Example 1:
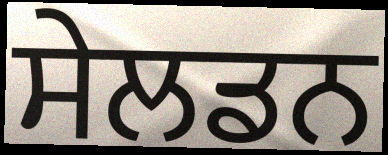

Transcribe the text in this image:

ਸੇਲਡਨ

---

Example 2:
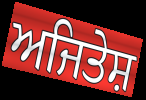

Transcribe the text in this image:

ਅਜਿਤੇਸ਼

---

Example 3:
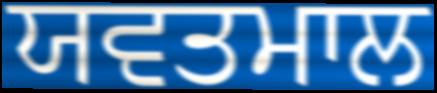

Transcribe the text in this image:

ਯਵਤਮਾਲ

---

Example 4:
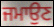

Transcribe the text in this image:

ਜਮਾਉਣ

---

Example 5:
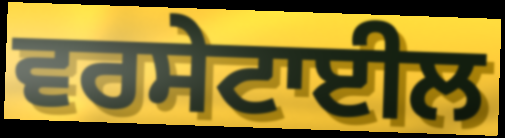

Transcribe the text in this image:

ਵਰਸੇਟਾਈਲ